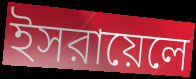
ইসরায়েলে